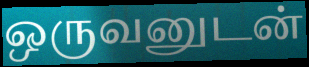
ஒருவனுடன்